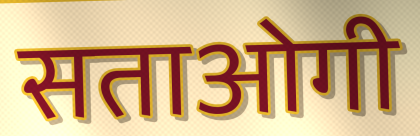
सताओगी